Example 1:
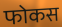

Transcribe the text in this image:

फोकस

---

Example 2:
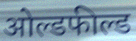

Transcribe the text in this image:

ओल्डफील्ड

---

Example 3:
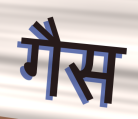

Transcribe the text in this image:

गैस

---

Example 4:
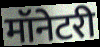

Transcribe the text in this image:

मॉनेटरी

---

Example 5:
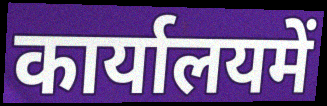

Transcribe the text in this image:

कार्यालयमें